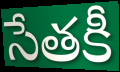
సేతకీ